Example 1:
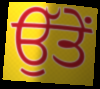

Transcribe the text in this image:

ਉੱਤੇਂ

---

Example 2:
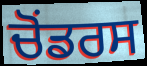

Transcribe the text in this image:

ਚੋਂਡਰਸ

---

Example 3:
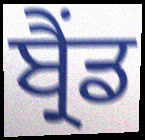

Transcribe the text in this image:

ਬ੍ਰੈਂਡ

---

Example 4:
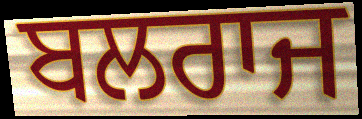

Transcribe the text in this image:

ਬਲਰਾਜ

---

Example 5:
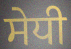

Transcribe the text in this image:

ਸੇਧੀ